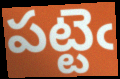
పట్టెఁ